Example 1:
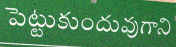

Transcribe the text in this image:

పెట్టుకుందువుగాని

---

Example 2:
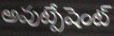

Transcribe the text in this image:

అవుట్పేషెంట్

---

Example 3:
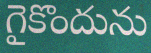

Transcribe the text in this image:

గైకొందును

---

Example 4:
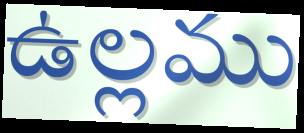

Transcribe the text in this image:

ఉల్లము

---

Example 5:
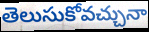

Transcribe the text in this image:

తెలుసుకోవచ్చునా